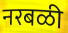
नरबळी